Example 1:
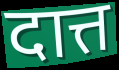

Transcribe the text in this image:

दात्त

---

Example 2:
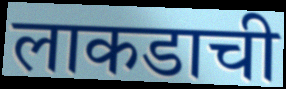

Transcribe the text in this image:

लाकडाची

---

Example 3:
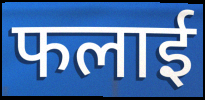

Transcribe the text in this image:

फलाई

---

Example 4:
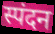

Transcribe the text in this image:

स्पंदन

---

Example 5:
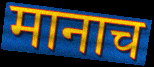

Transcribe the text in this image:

मानाच